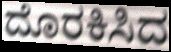
ದೊರಕಿಸಿದ